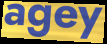
agey